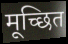
मूच्छित